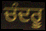
ਚੰਦਰੂ